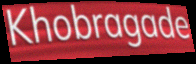
Khobragade